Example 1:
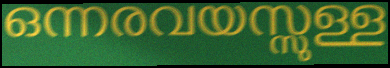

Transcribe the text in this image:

ഒന്നരവയസ്സുള്ള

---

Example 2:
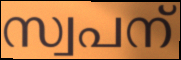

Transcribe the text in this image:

സ്വപന്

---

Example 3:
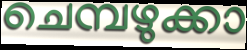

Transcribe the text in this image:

ചെമ്പഴുക്കാ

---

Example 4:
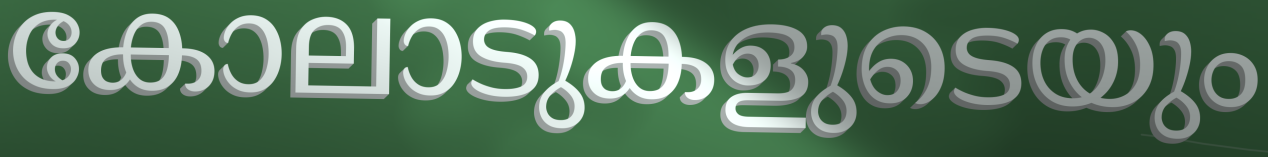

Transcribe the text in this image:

കോലാടുകളുടെയും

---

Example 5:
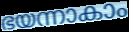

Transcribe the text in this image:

ഭയന്നാകാം